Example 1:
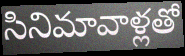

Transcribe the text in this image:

సినిమావాళ్లతో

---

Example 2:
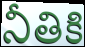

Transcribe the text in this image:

నీతికి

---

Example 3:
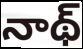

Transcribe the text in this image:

నాథ్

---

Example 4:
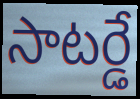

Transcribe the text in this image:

సాటర్డే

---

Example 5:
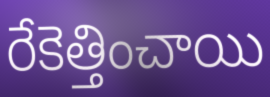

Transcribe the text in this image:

రేకెత్తించాయి